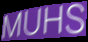
MUHS